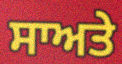
ਸਾਅਤੇ